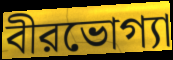
বীরভোগ্যা